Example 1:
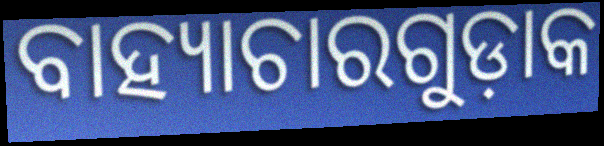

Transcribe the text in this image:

ବାହ୍ୟାଚାରଗୁଡ଼ାକ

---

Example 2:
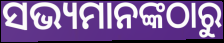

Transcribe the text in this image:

ସଭ୍ୟମାନଙ୍କଠାରୁ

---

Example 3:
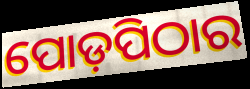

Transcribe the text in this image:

ପୋଡ଼ପିଠାର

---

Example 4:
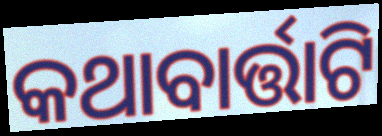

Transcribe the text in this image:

କଥାବାର୍ତ୍ତାଟି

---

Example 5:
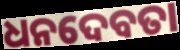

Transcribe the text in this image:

ଧନଦେବତା